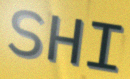
SHI